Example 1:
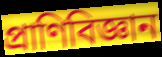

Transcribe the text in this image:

প্রাণিবিজ্ঞান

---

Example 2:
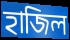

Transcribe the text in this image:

হাজিল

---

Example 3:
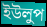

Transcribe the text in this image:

ইউলুপ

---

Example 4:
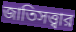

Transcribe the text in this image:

জাতিসত্ত্বার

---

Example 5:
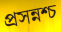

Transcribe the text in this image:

প্রসন্নশ্চ